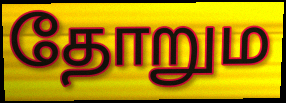
தோறும